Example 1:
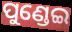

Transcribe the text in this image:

ପୁଣ୍ଡେଇ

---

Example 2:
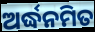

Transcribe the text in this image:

ଅର୍ଦ୍ଧନମିତ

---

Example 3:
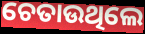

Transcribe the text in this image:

ଚେତାଉଥିଲେ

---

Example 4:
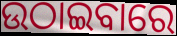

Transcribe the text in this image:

ଉଠାଇବାରେ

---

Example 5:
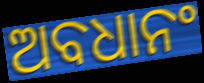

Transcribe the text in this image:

ଅବଧାନଂ